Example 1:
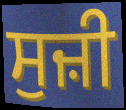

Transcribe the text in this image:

ਸੁਜ਼ੀ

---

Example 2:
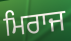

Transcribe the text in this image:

ਮਿਰਾਜ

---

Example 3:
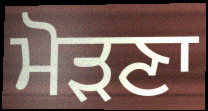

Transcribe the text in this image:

ਮੋੜਣਾ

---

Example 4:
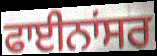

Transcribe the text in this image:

ਫਾਈਨਾਂਸਰ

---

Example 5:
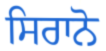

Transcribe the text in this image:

ਸਿਰਾਨੋ